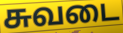
சுவடை